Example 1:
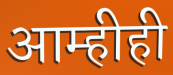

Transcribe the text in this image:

आम्हीही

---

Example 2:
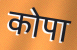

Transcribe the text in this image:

कोपा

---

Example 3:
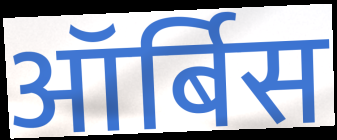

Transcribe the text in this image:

ऑर्बिस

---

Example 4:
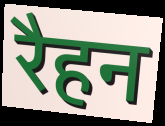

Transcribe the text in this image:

रैहन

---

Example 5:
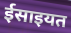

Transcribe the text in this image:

ईसाइयत